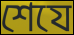
শেযে